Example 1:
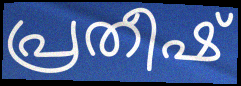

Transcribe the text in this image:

പ്രതീഷ്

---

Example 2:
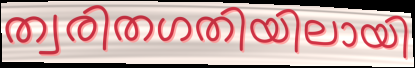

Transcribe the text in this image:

ത്വരിതഗതിയിലായി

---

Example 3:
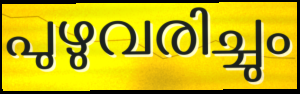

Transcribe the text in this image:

പുഴുവരിച്ചും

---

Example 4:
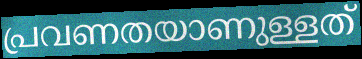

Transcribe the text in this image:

പ്രവണതയാണുള്ളത്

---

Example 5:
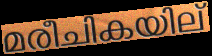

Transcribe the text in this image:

മരീചികയില്